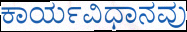
ಕಾರ್ಯವಿಧಾನವು